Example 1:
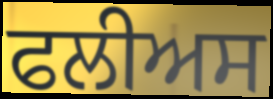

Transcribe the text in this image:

ਫਲੀਅਸ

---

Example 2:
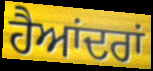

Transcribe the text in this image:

ਹੈਆਂਦਰਾਂ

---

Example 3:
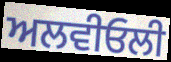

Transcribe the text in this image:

ਅਲਵੀਓਲੀ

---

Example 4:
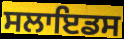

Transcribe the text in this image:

ਸਲਾਇਡਸ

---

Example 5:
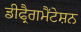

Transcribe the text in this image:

ਡੀਫ੍ਰੈਗਮੈਂਟੇਸ਼ਨ